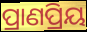
ପ୍ରାଣପ୍ରିୟ